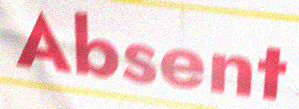
Absent